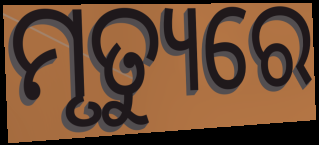
ମୃତ୍ୟୁରେ